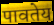
पावतेय